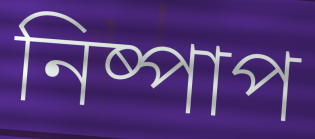
নিষ্পাপ